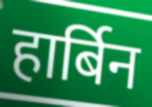
हार्बिन